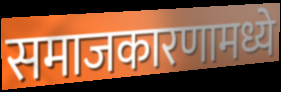
समाजकारणामध्ये